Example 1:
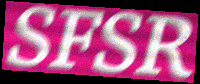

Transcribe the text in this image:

SFSR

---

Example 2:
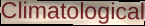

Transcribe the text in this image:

Climatological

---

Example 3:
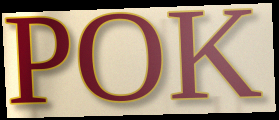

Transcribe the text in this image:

POK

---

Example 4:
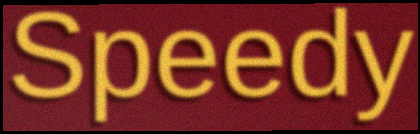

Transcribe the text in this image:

Speedy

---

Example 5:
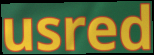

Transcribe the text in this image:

usred